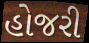
હોજરી